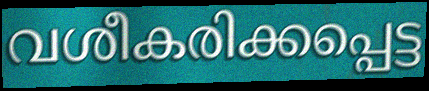
വശീകരിക്കപ്പെട്ട